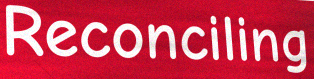
Reconciling